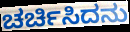
ಚರ್ಚಿಸಿದನು